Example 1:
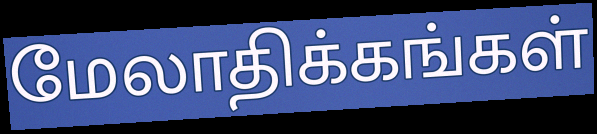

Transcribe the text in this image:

மேலாதிக்கங்கள்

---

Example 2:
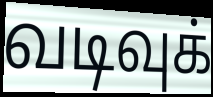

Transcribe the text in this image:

வடிவுக்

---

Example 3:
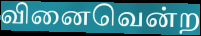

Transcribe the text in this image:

வினைவென்ற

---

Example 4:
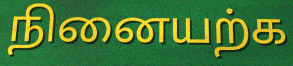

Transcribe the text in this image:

நினையற்க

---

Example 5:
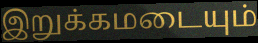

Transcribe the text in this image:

இறுக்கமடையும்